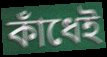
কাঁধেই